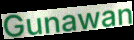
Gunawan